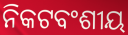
ନିକଟବଂଶୀୟ